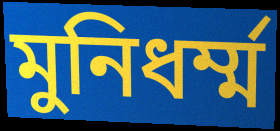
মুনিধর্ম্ম